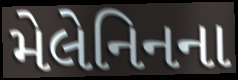
મેલેનિનના